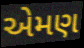
એમણ